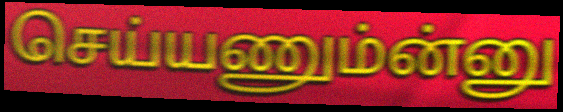
செய்யணும்ன்னு